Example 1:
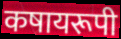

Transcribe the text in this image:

कषायरूपी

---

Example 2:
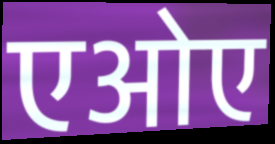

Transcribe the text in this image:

एओए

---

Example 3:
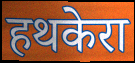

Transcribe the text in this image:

हथकेरा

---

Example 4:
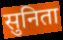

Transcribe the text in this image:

सुनिता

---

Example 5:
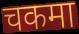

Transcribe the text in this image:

चकमा